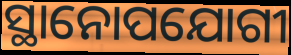
ସ୍ଥାନୋପଯୋଗୀ